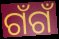
ଗଁଗଁ